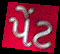
પેંટ